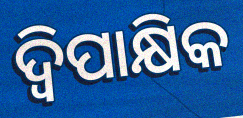
ଦ୍ୱିପାକ୍ଷିକ